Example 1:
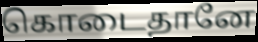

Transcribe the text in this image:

கொடைதானே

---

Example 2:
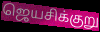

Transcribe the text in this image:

ஜெயசிக்குறு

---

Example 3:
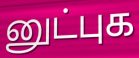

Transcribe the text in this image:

னுட்புக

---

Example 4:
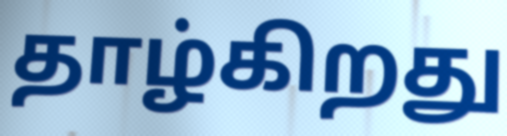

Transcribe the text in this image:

தாழ்கிறது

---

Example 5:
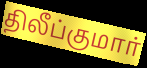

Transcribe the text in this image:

திலீப்குமார்